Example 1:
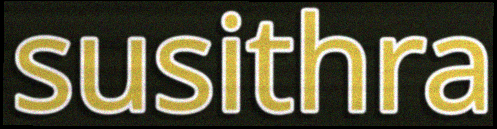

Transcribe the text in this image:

susithra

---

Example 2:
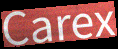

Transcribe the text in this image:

Carex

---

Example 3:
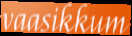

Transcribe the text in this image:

vaasikkum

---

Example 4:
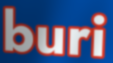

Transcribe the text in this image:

buri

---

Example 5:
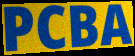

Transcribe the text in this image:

PCBA